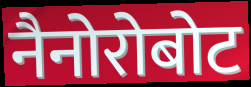
नैनोरोबोट